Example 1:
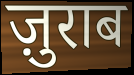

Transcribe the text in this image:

ज़ुराब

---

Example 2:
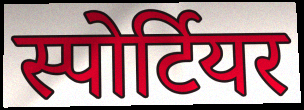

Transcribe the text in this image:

स्पोर्टियर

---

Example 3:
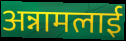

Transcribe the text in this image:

अन्नामलाई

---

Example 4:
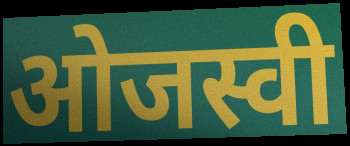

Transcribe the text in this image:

ओजस्वी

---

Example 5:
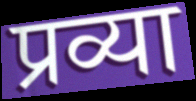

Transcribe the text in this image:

प्रव्या